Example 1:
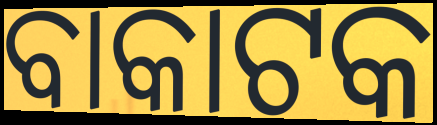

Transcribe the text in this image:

ବାକାଟକ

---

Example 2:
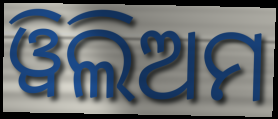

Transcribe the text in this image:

ୱିଲିଅମ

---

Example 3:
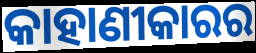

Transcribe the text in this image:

କାହାଣୀକାରର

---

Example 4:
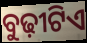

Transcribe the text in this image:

ବୁଢ଼ୀଟିଏ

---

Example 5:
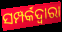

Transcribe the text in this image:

ସମ୍ପର୍କଦ୍ୱାରା